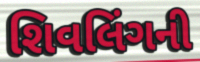
શિવલિંગની